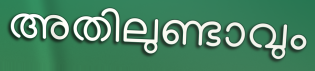
അതിലുണ്ടാവും